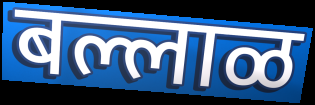
बल्लाळ